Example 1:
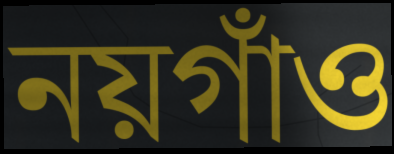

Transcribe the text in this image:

নয়গাঁও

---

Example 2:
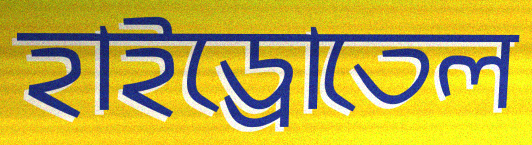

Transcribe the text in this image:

হাইড্রোতেল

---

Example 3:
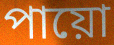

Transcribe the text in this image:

পায়ো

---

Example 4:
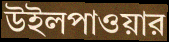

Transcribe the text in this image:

উইলপাওয়ার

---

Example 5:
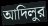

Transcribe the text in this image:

আদিলুর